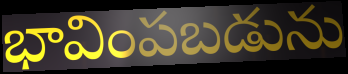
భావింపబడును